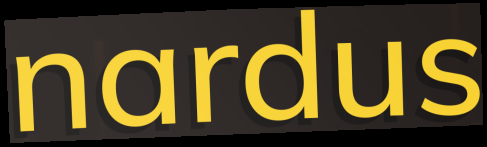
nardus